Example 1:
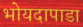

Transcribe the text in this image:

भोयदापाडा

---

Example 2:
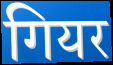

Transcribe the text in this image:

गियर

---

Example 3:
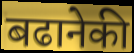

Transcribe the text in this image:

बढानेकी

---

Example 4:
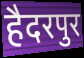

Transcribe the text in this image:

हैदरपुर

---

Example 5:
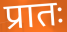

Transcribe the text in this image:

प्रातः